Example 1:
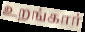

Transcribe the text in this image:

உறங்கார்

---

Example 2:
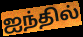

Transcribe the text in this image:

ஐந்தில்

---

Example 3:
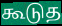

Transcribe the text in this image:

கூடுத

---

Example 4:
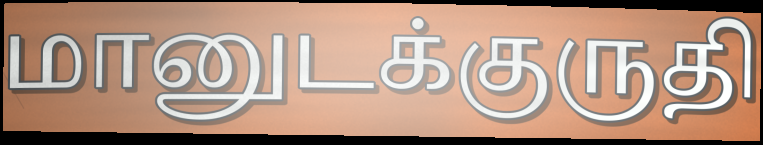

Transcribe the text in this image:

மானுடக்குருதி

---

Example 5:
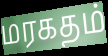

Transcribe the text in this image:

மரகதம்